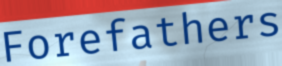
Forefathers